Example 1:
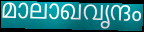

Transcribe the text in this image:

മാലാഖവൃന്ദം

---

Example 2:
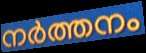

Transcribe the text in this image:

നർത്തനം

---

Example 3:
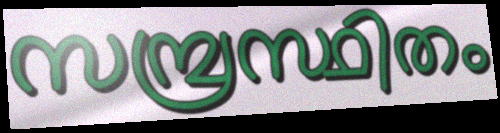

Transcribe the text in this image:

സമ്പ്രസ്ഥിതം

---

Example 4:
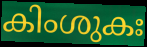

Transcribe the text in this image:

കിംശുകഃ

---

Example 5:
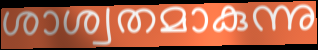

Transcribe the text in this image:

ശാശ്വതമാകുന്നു